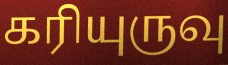
கரியுருவு